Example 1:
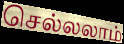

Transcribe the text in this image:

செல்லலாம்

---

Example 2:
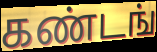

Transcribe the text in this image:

கண்டங்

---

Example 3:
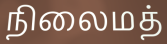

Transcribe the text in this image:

நிலைமத்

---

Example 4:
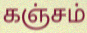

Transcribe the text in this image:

கஞ்சம்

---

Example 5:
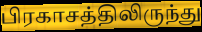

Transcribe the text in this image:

பிரகாசத்திலிருந்து